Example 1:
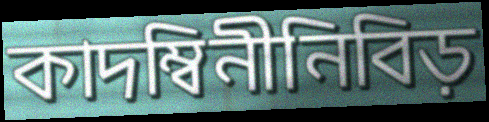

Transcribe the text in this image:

কাদম্বিনীনিবিড়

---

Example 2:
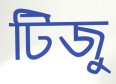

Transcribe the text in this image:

টিজু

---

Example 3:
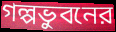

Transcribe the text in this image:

গল্পভুবনের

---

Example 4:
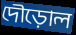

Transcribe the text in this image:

দৌড়োল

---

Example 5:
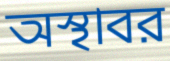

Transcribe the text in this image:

অস্থাবর